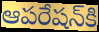
ఆపరేషన్‌కి